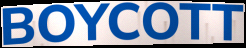
BOYCOTT